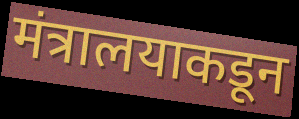
मंत्रालयाकडून